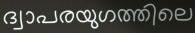
ദ്വാപരയുഗത്തിലെ